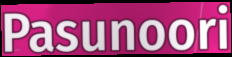
Pasunoori